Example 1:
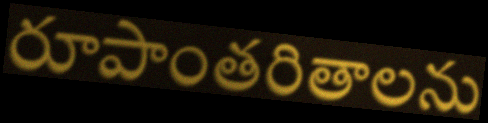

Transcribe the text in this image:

రూపాంతరితాలను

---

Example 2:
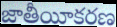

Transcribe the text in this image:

జాతీయీకరణ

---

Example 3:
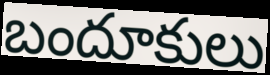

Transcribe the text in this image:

బందూకులు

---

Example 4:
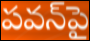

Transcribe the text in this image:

పవన్‌పై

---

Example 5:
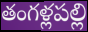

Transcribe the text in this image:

తంగళ్లపల్లి